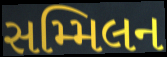
સમ્મિલન